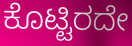
ಕೊಟ್ಟಿರದೇ